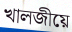
খালজীয়ে